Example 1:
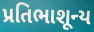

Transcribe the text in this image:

પ્રતિભાશૂન્ય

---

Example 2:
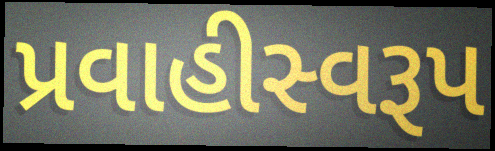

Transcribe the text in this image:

પ્રવાહીસ્વરૂપ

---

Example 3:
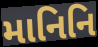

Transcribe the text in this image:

માનિનિ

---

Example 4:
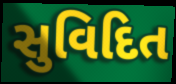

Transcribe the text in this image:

સુવિદિત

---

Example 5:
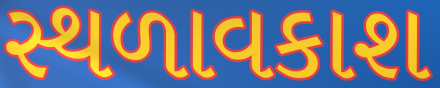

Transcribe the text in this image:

સ્થળાવકાશ